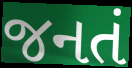
જનતં